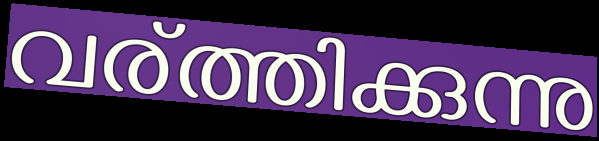
വര്ത്തിക്കുന്നു